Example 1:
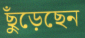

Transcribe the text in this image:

ছুঁড়েছেন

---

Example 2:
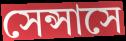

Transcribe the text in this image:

সেন্সাসে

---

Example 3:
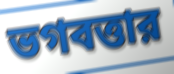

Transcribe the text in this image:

ভগবত্তার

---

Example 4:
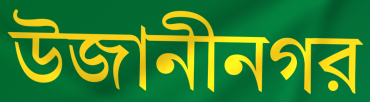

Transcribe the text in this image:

উজানীনগর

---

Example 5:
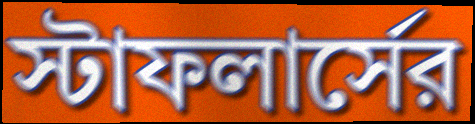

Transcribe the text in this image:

স্টাফলার্সের